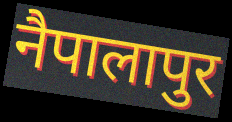
नैपालापुर